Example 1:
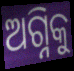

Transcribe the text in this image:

ଅଗ୍ନିକୁ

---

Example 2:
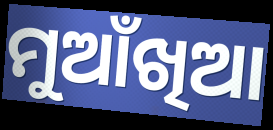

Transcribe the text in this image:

ମୁଆଁଖିଆ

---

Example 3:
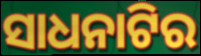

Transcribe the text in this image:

ସାଧନାଟିର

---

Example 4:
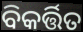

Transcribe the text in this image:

ବିକର୍ତ୍ତିତ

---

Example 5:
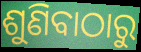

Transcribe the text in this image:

ଶୁଣିବାଠାରୁ